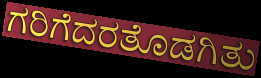
ಗರಿಗೆದರತೊಡಗಿತು